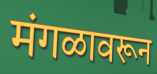
मंगळावरून